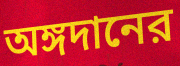
অঙ্গদানের